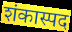
शंकास्पद